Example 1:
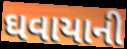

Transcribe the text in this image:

ઘવાયાની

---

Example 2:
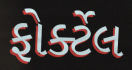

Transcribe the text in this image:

ફોર્ક્ટેલ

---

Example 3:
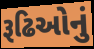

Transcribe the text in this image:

રૂઢિઓનું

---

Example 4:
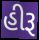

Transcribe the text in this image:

હીરૂ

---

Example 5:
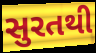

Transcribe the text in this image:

સુરતથી